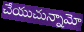
చేయుచున్నామో